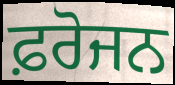
ਫ਼ਰੋਜਨ